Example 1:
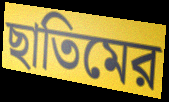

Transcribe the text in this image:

ছাতিমের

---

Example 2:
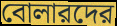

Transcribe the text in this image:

বোলারদের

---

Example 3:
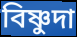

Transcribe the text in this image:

বিষ্ণুদা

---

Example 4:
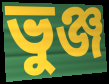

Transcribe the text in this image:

ভুঞ্জ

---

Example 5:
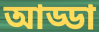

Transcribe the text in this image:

আড্ডা